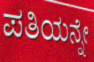
ಪತಿಯನ್ನೇ